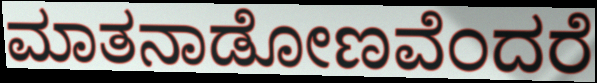
ಮಾತನಾಡೋಣವೆಂದರೆ